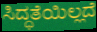
ಸಿದ್ಧತೆಯಿಲ್ಲದೆ